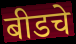
बीडचे